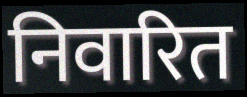
निवारित